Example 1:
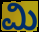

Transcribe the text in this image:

ಮಿ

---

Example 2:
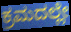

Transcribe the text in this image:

ಕ್ರಮದಲ್ಲೇ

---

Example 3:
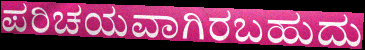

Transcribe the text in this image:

ಪರಿಚಯವಾಗಿರಬಹುದು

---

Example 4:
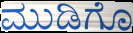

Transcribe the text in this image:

ಮುಡಿಗೊ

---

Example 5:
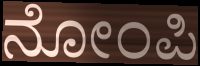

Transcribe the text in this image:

ನೋಂಪಿ